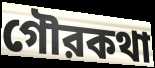
গৌরকথা